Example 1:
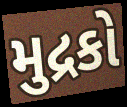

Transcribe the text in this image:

મુદ્રકો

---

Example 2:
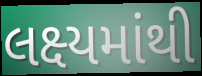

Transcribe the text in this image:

લક્ષ્યમાંથી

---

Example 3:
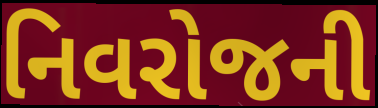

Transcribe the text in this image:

નિવરોજની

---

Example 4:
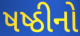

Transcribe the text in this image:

ષષ્ઠીનો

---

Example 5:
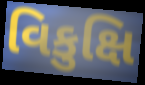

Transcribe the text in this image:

વિકુક્ષિ